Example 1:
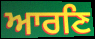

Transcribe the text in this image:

ਆਰਣਿ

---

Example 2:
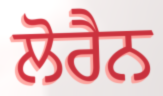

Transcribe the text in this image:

ਲੋਰੈਨ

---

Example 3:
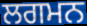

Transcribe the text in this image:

ਲਗਮਨ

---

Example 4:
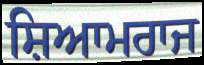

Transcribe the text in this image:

ਸ਼ਿਆਮਰਾਜ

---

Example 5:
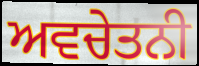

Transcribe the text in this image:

ਅਵਚੇਤਨੀ